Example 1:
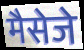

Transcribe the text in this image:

मैसेजे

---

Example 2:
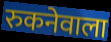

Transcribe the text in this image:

रुकनेवाला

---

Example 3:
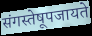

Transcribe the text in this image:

संगस्तेषूपजायते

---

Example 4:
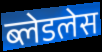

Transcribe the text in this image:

ब्लेडलेस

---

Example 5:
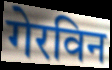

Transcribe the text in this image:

गेरविन